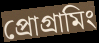
প্ৰোগ্ৰামিং